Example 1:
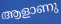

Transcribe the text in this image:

ആളാണു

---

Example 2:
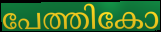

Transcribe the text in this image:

പേത്തികോ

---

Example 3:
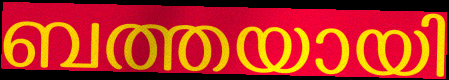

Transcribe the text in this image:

ബത്തയായി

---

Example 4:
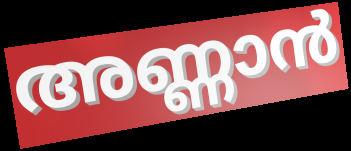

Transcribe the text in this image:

അണ്ണാൻ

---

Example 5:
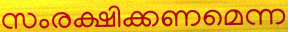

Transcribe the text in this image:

സംരക്ഷിക്കണമെന്ന